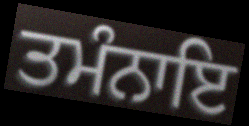
ਤਮੰਨਾਇ